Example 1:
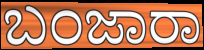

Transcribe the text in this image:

ಬಂಜಾರಾ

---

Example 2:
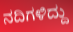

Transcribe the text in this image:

ನದಿಗಳಿದ್ದು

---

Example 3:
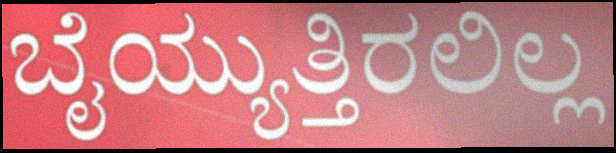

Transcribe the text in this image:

ಬೈಯ್ಯುತ್ತಿರಲಿಲ್ಲ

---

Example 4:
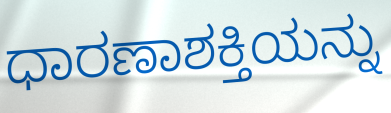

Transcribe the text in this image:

ಧಾರಣಾಶಕ್ತಿಯನ್ನು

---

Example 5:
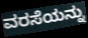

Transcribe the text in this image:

ವರಸೆಯನ್ನು